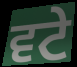
ਵਟੇ